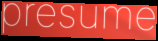
presume